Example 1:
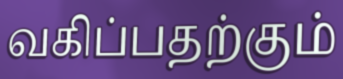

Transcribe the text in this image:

வகிப்பதற்கும்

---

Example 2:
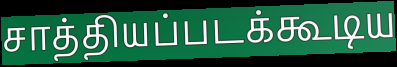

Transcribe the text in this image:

சாத்தியப்படக்கூடிய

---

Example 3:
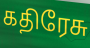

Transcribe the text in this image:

கதிரேசு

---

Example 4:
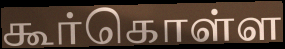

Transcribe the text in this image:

கூர்கொள்ள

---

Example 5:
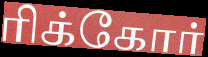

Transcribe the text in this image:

ரிக்கோர்